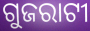
ଗୁଜରାଟୀ